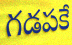
గడపకే